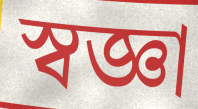
স্বজ্ঞা